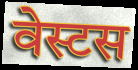
वेस्टस